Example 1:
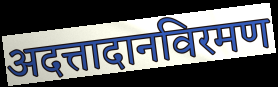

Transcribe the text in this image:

अदत्तादानविरमण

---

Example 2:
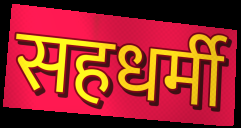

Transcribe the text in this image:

सहधर्मी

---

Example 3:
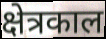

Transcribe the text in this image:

क्षेत्रकाल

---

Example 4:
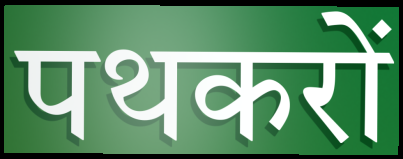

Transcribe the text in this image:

पथकरों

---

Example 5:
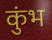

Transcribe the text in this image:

कुंभ